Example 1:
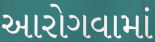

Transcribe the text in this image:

આરોગવામાં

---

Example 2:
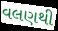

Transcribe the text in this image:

વલણથી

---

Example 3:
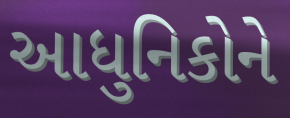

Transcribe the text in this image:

આધુનિકોને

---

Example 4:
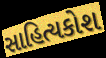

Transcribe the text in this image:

સાહિત્યકોશ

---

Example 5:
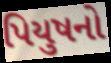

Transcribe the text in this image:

પિયુષનો